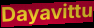
Dayavittu